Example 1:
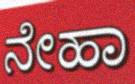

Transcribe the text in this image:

ನೇಹಾ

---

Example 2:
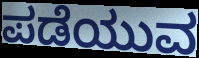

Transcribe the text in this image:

ಪಡೆಯುವ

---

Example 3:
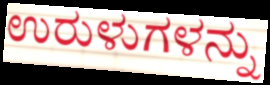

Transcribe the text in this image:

ಉರುಳುಗಳನ್ನು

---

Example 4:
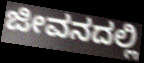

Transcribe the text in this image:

ಜೀವನದಲ್ಲಿ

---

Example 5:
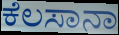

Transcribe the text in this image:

ಕೆಲಸಾನಾ